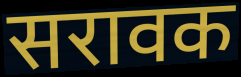
सरावक